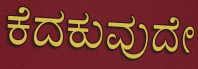
ಕೆದಕುವುದೇ